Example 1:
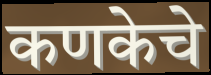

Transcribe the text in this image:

कणकेचे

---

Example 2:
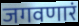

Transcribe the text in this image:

जगवणारं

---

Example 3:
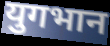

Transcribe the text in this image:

युगभान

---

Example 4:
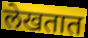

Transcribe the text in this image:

लेखतात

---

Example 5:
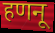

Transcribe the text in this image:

हणनू